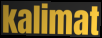
kalimat